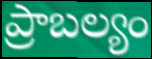
ప్రాబల్యం